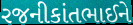
રજનીકાંતભાઈને